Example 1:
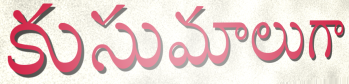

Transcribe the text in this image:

కుసుమాలుగా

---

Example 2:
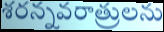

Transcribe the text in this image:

శరన్నవరాత్రులను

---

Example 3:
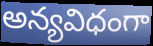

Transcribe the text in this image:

అన్యవిధంగా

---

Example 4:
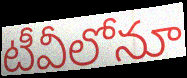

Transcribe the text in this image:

టీవీలోనూ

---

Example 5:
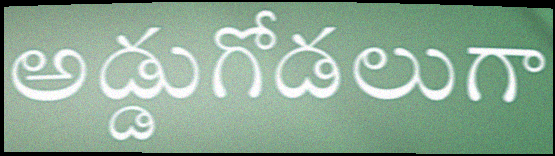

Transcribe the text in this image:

అడ్డుగోడలుగా